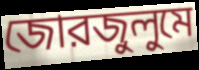
জোরজুলুমে